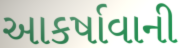
આકર્ષાવાની